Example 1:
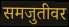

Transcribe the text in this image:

समजुतीवर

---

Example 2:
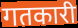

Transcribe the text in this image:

गतकारी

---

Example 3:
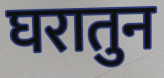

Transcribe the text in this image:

घरातुन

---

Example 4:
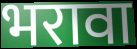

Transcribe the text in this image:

भरावा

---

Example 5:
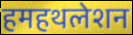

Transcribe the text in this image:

हमहथलेशन